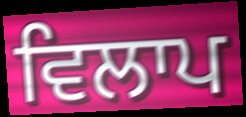
ਵਿਲਾਪ